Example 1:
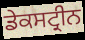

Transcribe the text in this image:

ਡੇਕਸਟ੍ਰੀਨ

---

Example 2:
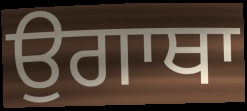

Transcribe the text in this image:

ਉਗਾਥਾ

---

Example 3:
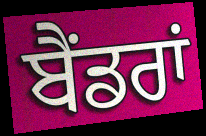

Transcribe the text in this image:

ਬੈਂਡਰਾਂ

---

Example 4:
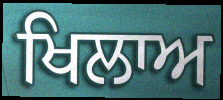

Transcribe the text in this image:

ਖਿਲਾਅ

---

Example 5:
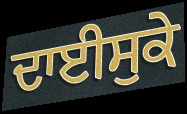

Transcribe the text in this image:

ਦਾਈਸੁਕੇ